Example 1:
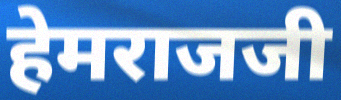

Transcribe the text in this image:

हेमराजजी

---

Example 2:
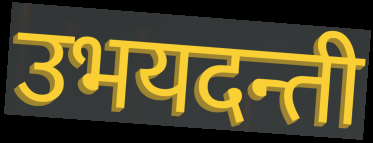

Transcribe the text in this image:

उभयदन्ती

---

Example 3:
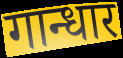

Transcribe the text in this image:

गान्धार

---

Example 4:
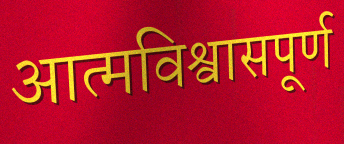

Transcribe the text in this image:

आत्मविश्वासपूर्ण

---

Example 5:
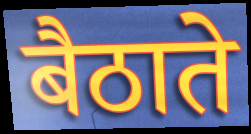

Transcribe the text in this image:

बैठाते